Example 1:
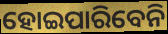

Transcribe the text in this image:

ହୋଇପାରିବେନି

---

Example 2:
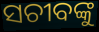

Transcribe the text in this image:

ସଚୀବଙ୍କୁ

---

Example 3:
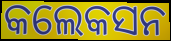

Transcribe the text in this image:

କଲେକସନ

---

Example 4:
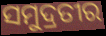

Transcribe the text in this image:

ସମୁଦ୍ରତୀର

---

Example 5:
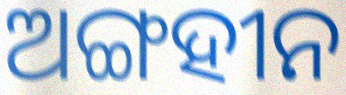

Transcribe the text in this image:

ଅଙ୍ଗହୀନ